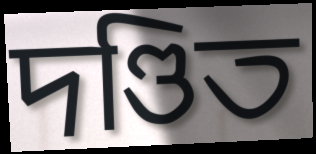
দণ্ডিত